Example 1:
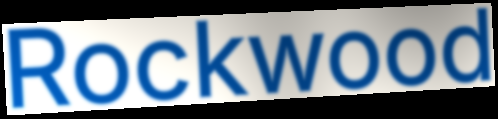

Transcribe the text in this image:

Rockwood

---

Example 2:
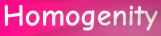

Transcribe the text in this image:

Homogenity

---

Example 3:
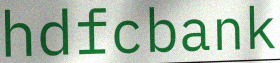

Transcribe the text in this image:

hdfcbank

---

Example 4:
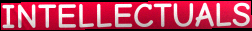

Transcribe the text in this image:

INTELLECTUALS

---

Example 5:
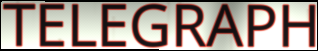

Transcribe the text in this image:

TELEGRAPH